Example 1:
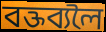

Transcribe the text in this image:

বক্তব্যলৈ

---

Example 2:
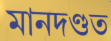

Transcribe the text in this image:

মানদণ্ডত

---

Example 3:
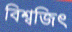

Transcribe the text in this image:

বিশ্বজিৎ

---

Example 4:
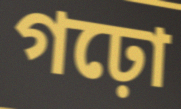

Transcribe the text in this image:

গঢ়ো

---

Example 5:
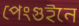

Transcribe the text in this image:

পেংগুইনে